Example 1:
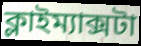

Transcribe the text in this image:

ক্লাইম্যাক্সটা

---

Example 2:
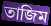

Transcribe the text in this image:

তাজিম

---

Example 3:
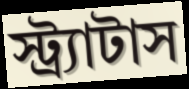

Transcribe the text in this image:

স্ট্র্যাটাস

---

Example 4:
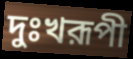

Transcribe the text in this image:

দুঃখরূপী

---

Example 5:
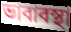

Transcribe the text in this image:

ভাবাবস্থা